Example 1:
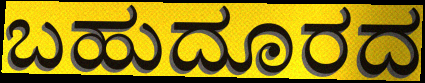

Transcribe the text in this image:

ಬಹುದೂರದ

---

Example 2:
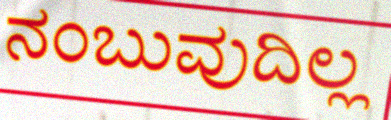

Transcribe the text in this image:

ನಂಬುವುದಿಲ್ಲ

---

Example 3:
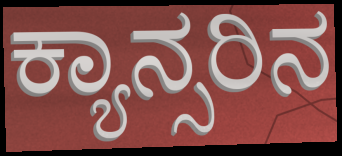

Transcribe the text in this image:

ಕ್ಯಾನ್ಸರಿನ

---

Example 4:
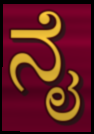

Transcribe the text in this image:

ನೈ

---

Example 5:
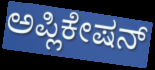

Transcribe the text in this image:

ಅಪ್ಲಿಕೇಷನ್